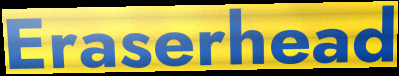
Eraserhead